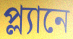
প্ল্যানে